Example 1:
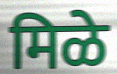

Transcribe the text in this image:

मिळे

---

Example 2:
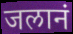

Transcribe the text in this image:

जलानं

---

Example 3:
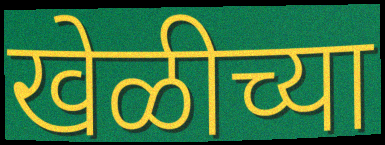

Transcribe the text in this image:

खेळीच्या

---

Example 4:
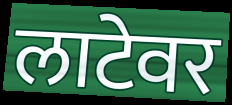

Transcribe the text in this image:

लाटेवर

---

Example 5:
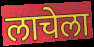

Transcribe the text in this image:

लाचेला